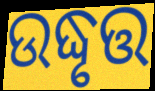
ଉଦ୍ଧୃତ୍ତ